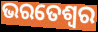
ଭରତେଶ୍ଵର